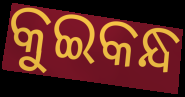
କୁଇକନ୍ଧ